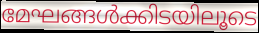
മേഘങ്ങൾക്കിടയിലൂടെ